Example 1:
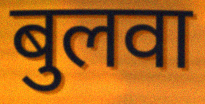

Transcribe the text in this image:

बुलवा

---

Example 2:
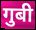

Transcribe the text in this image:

गुबी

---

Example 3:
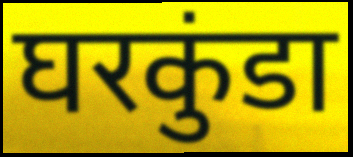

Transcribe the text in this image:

घरकुंडा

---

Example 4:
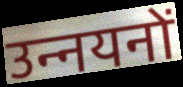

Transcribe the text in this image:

उन्नयनों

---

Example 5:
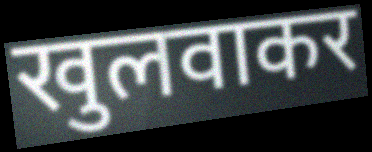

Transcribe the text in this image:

खुलवाकर